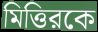
মিত্তিরকে